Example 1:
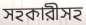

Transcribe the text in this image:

সহকারীসহ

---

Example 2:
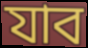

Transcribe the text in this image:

যাব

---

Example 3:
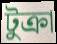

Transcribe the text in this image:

টুক্রা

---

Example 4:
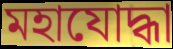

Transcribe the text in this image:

মহাযোদ্ধা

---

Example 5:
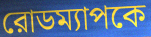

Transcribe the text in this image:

রোডম্যাপকে